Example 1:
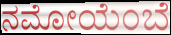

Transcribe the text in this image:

ನಮೋಯೆಂಬೆ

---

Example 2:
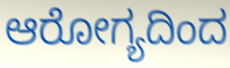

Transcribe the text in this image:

ಆರೋಗ್ಯದಿಂದ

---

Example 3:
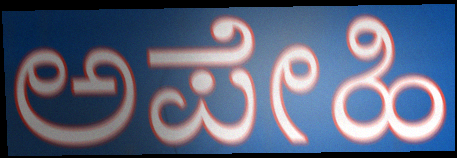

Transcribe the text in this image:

ಅಪೇಹಿ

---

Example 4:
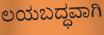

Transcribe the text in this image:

ಲಯಬದ್ಧವಾಗಿ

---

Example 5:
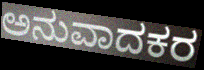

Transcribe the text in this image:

ಅನುವಾದಕರ